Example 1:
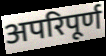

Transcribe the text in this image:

अपरिपूर्ण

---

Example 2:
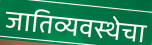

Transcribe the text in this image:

जातिव्यवस्थेचा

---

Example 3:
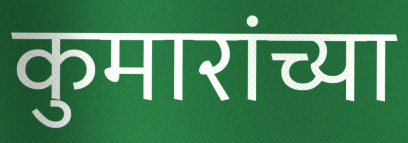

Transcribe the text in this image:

कुमारांच्या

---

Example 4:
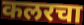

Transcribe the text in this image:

कलरचा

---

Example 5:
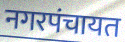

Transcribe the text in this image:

नगरपंचायत